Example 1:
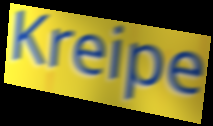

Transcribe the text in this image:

Kreipe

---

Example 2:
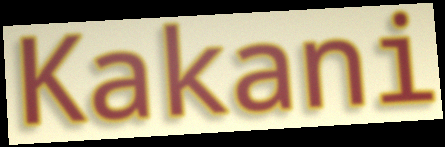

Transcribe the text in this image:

Kakani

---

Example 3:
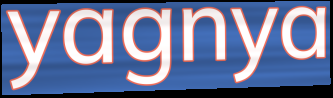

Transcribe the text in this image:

yagnya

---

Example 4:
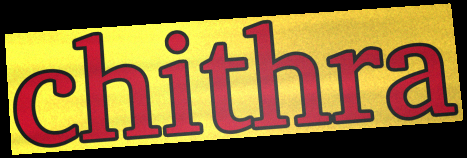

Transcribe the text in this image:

chithra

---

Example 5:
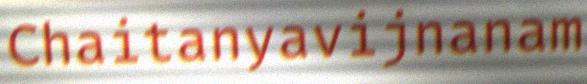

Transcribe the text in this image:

Chaitanyavijnanam